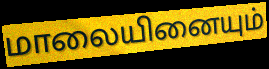
மாலையினையும்